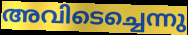
അവിടെച്ചെന്നു